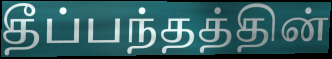
தீப்பந்தத்தின்